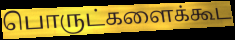
பொருட்களைக்கூட